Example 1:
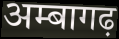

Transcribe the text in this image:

अम्बागढ़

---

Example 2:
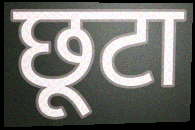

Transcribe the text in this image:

छूटा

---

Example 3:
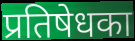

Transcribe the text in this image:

प्रतिषेधका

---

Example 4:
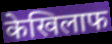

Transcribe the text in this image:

केखिलाफ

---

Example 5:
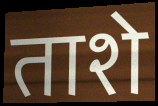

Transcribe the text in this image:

ताशे